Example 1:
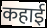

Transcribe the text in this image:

कहाई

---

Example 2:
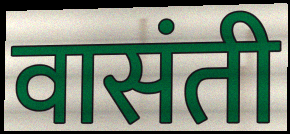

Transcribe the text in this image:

वासंती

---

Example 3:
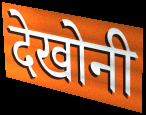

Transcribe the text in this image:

देखोनी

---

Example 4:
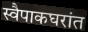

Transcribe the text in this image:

स्वैपाकघरांत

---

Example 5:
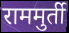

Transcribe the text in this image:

राममुर्ती